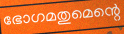
ഭോഗമതുമെന്റെ